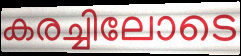
കരച്ചിലോടെ